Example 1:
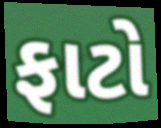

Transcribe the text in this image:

ફાટો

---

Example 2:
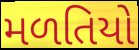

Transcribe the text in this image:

મળતિયો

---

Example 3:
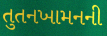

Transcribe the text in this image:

તુતનખામનની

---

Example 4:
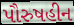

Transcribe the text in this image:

પૌરુષહીન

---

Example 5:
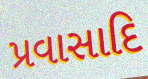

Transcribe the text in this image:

પ્રવાસાદિ